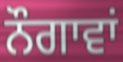
ਨੌਗਾਵਾਂ